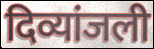
दिव्यांजली